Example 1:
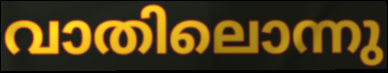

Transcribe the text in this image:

വാതിലൊന്നു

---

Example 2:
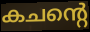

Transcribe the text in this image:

കചന്റെ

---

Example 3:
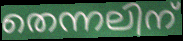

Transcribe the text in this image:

തെന്നലിന്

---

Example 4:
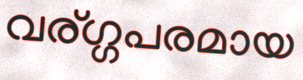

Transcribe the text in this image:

വര്ഗ്ഗപരമായ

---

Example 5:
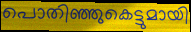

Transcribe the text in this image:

പൊതിഞ്ഞുകെട്ടുമായി